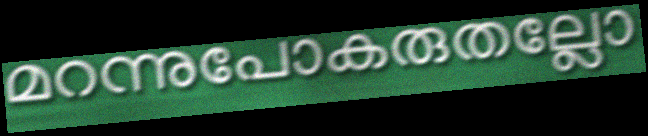
മറന്നുപോകരുതല്ലോ